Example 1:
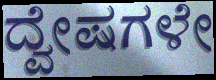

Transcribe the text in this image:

ದ್ವೇಷಗಳೇ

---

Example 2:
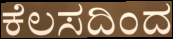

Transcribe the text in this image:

ಕೆಲಸದಿಂದ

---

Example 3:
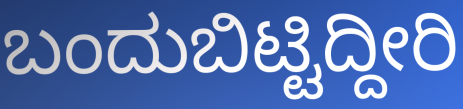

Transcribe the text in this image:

ಬಂದುಬಿಟ್ಟಿದ್ದೀರಿ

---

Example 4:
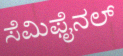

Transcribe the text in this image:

ಸೆಮಿಫೈನಲ್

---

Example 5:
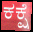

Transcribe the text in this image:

ಕಕ್ಷೆ